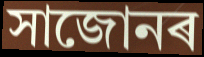
সাজোনৰ